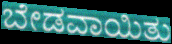
ಬೇಡವಾಯಿತು